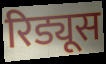
रिड्यूस